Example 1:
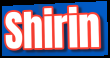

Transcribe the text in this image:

Shirin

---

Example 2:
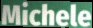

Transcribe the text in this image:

Michele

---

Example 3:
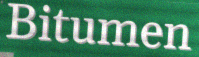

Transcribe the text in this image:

Bitumen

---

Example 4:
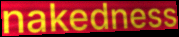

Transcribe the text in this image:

nakedness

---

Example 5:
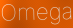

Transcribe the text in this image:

Omega